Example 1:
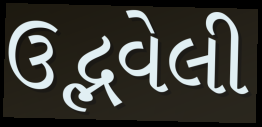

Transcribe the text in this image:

ઉદ્ભવેલી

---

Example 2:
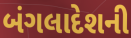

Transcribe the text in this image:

બંગલાદેશની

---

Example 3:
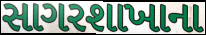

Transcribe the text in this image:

સાગરશાખાના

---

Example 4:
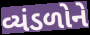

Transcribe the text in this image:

વ્યંડળોને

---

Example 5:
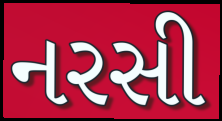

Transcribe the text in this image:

નરસી